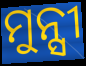
ମୁନ୍ସୀ